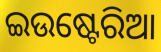
ଇଉଷ୍ଟେରିଆ